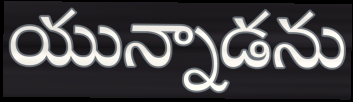
యున్నాడను